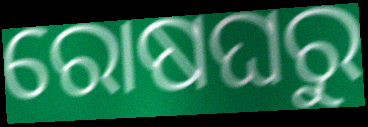
ରୋଷଘରୁ